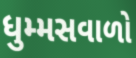
ધુમ્મસવાળો